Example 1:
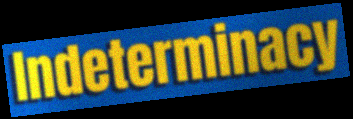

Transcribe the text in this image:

Indeterminacy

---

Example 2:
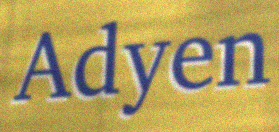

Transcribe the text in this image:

Adyen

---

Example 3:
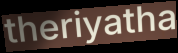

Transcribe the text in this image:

theriyatha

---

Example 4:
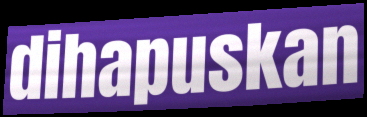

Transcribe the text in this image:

dihapuskan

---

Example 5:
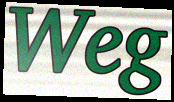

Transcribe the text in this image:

Weg